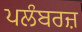
ਪਲੰਬਰਜ਼